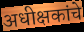
अधीक्षकांचे